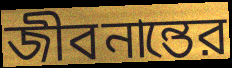
জীবনান্তের